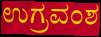
ಉಗ್ರವಂಶ